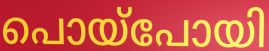
പൊയ്പോയി